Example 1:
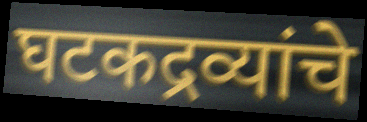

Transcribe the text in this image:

घटकद्रव्यांचे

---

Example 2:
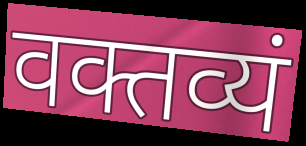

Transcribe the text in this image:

वक्तव्यं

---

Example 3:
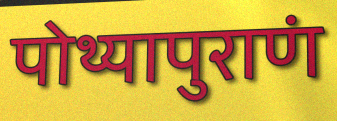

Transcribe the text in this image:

पोथ्यापुराणं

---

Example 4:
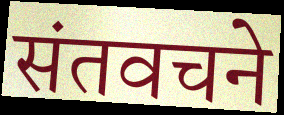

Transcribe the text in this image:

संतवचने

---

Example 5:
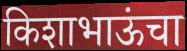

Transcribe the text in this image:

किशाभाऊंचा